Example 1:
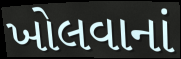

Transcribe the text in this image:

ખોલવાનાં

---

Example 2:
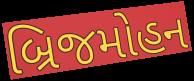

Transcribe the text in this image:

બ્રિજમોહન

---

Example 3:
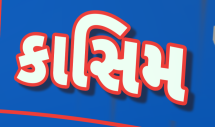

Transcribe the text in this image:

કાસિમ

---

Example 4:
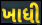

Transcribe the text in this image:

ખાધી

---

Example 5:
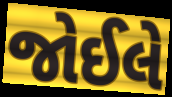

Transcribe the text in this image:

જોઈલે